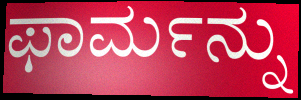
ಫಾರ್ಮನ್ನು